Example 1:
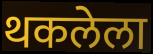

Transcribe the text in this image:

थकलेला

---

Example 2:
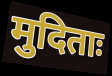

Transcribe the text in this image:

मुदिताः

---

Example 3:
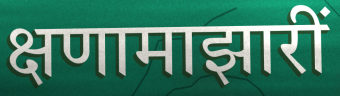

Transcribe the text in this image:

क्षणामाझारीं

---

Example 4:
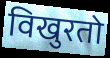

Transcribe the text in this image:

विखुरतो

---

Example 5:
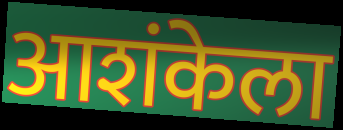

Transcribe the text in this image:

आशंकेला